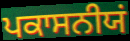
ਪਕਾਸਨੀਯਂ